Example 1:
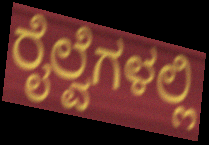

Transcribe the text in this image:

ರೈಲ್ವೆಗಳಲ್ಲಿ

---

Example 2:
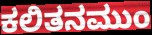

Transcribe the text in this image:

ಕಲಿತನಮುಂ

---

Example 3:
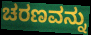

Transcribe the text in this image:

ಚರಣವನ್ನು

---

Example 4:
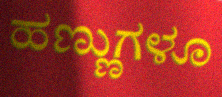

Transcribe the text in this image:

ಹಣ್ಣುಗಳೂ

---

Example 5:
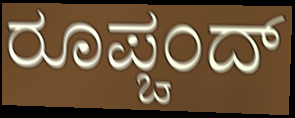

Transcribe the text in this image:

ರೂಪ್ಚಂದ್